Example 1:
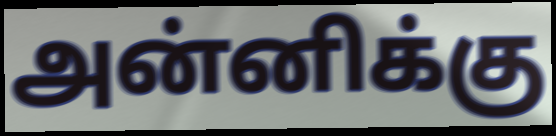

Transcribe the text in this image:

அன்னிக்கு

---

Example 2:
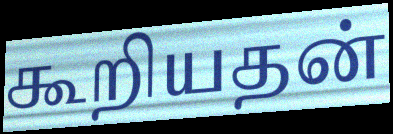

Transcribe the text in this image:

கூறியதன்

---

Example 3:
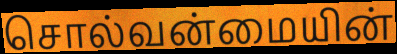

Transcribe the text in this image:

சொல்வன்மையின்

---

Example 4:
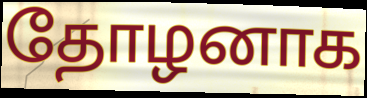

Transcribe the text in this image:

தோழனாக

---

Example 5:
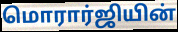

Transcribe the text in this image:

மொரார்ஜியின்